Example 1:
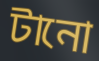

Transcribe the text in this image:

টানো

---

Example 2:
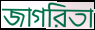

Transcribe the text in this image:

জাগরিতা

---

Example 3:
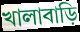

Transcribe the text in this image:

খালাবাড়ি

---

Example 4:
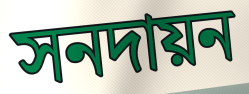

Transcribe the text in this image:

সনদায়ন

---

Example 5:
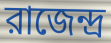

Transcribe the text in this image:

রাজেন্দ্র